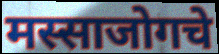
मस्साजोगचे